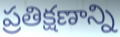
ప్రతిక్షణాన్ని